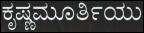
ಕೃಷ್ಣಮೂರ್ತಿಯು